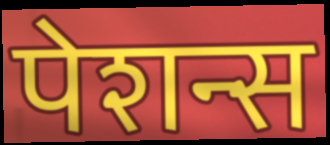
पेशन्स